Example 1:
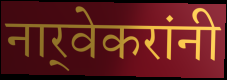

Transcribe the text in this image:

नार्वेकरांनी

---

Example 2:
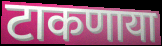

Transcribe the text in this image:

टाकणाया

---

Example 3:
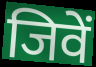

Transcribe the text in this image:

जिवें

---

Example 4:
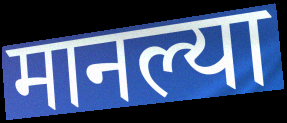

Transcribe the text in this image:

मानल्या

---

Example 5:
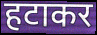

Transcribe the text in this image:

हटाकर